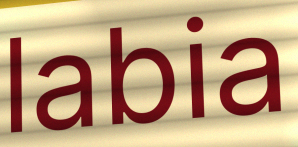
labia